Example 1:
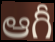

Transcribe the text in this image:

ఆగీ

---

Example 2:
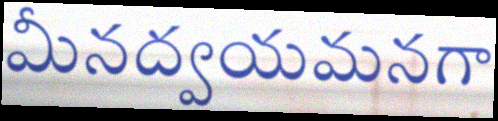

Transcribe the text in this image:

మీనద్వయమనగా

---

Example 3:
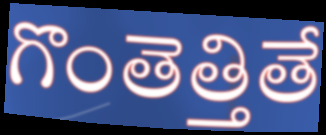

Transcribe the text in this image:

గొంతెత్తితే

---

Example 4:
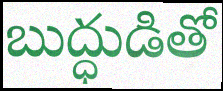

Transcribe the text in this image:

బుద్ధుడితో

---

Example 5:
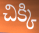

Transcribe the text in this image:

చిక్కి